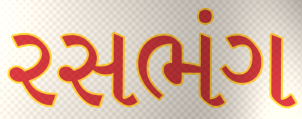
રસભંગ